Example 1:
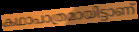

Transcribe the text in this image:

കഥാപാത്രമായിട്ടാണ്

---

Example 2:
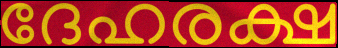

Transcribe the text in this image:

ദേഹരക്ഷ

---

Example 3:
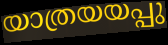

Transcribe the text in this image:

യാത്രയയപ്പു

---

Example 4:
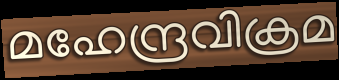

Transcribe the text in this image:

മഹേന്ദ്രവിക്രമ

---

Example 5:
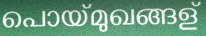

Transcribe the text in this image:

പൊയ്മുഖങ്ങള്